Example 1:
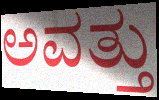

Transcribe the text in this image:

ಅವತ್ತು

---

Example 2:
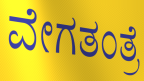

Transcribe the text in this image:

ವೇಗತಂತ್ರೆ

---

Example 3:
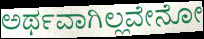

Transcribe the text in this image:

ಅರ್ಥವಾಗಿಲ್ಲವೇನೋ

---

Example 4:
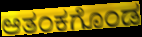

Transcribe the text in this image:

ಆತಂಕಗೊಂಡ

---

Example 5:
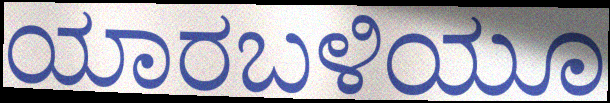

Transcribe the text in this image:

ಯಾರಬಳಿಯೂ